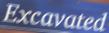
Excavated